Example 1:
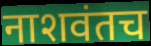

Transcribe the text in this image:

नाशवंतच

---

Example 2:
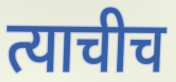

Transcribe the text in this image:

त्याचीच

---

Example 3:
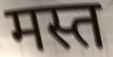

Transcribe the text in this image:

मस्त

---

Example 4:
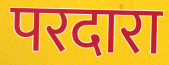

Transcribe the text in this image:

परदारा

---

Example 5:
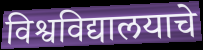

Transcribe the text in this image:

विश्वविद्यालयाचे